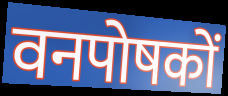
वनपोषकों